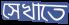
সেখাতে